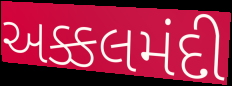
અક્કલમંદી